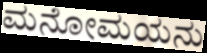
ಮನೋಮಯನು